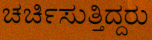
ಚರ್ಚಿಸುತ್ತಿದ್ದರು